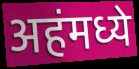
अहंमध्ये